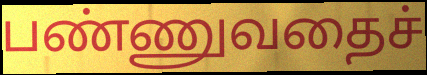
பண்ணுவதைச்